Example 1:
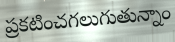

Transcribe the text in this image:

ప్రకటించగలుగుతున్నాం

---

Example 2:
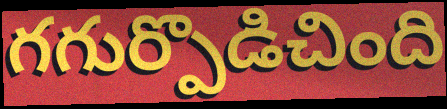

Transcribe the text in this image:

గగుర్పొడిచింది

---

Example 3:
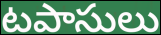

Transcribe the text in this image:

టపాసులు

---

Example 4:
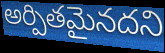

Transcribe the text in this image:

అర్పితమైనదని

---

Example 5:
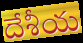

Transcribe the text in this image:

దేశీయ